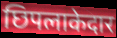
छिपलाकेदार